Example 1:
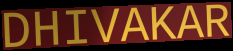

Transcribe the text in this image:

DHIVAKAR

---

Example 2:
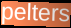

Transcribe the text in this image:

pelters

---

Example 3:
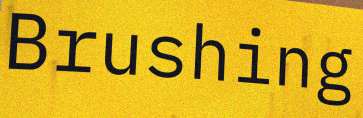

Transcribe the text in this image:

Brushing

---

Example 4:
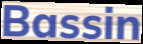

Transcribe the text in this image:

Bassin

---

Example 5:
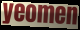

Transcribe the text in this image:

yeomen